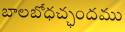
బాలబోధచ్ఛందము